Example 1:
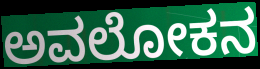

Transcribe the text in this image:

ಅವಲೋಕನ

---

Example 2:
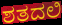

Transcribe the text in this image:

ಶತದಲಿ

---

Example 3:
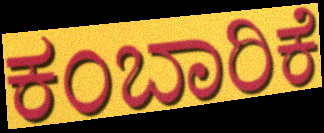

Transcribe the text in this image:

ಕಂಬಾರಿಕೆ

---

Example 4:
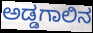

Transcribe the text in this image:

ಅಡ್ಡಗಾಲಿನ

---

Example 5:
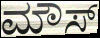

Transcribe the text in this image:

ಮೌಸ್